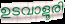
ഉടവാളൂരി